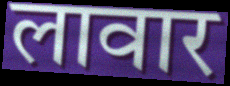
लावार